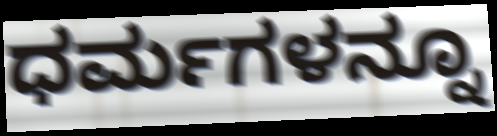
ಧರ್ಮಗಳನ್ನೂ